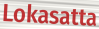
Lokasatta